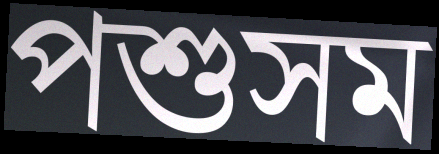
পশুসম